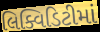
લિક્વિડિટીમાં